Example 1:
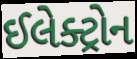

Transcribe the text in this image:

ઈલેક્ટ્રોન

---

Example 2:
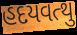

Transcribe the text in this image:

હદયવત્થુ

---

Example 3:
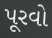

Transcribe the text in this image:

પૂરવો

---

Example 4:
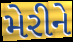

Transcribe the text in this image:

મેરીને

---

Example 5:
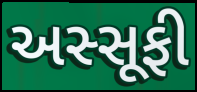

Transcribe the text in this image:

અસ્સૂફી